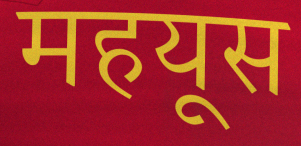
महयूस